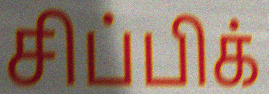
சிப்பிக்